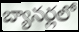
బ్యానర్లలో